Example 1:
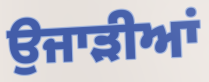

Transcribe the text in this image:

ਉਜਾੜੀਆਂ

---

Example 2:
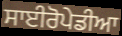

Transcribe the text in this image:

ਸਾਈਰੋਪੇਡੀਆ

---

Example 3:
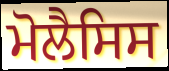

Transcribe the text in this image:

ਮੋਲੈਸਿਸ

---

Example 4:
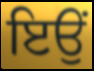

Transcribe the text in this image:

ਇਉਂ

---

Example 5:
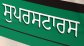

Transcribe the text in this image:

ਸੁਪਰਸਟਾਰਸ